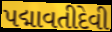
પદ્માવતીદેવી